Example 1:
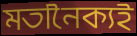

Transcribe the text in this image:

মতানৈক্যই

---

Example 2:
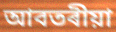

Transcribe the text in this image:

আবতৰীয়া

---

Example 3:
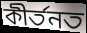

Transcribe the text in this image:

কীৰ্তনত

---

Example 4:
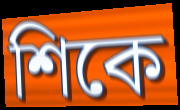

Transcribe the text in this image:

শিকে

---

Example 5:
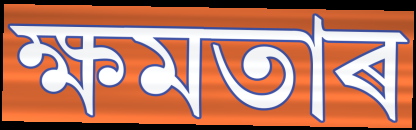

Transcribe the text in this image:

ক্ষমতাৰ